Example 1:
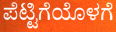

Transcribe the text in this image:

ಪೆಟ್ಟಿಗೆಯೊಳಗೆ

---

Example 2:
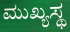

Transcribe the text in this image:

ಮುಖ್ಯಸ್ಥ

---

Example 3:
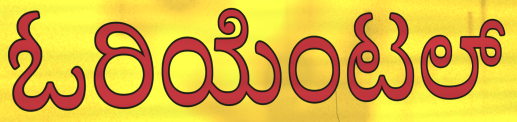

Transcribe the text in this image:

ಓರಿಯೆಂಟಲ್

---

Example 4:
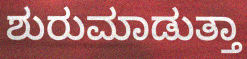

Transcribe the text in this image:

ಶುರುಮಾಡುತ್ತಾ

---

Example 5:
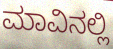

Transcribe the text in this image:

ಮಾವಿನಲ್ಲಿ